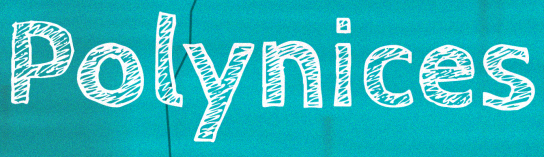
Polynices